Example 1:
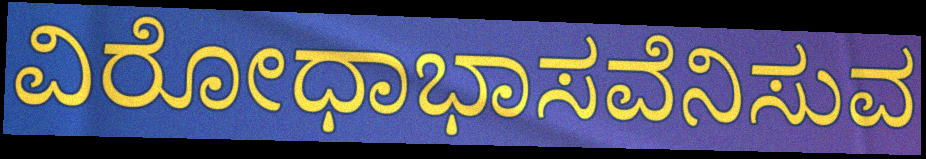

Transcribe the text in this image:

ವಿರೋಧಾಭಾಸವೆನಿಸುವ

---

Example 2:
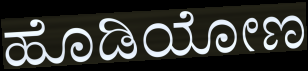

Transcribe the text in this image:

ಹೊಡಿಯೋಣ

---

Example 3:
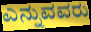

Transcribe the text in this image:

ಎನ್ನುವವರು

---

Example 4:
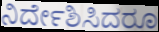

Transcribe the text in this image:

ನಿರ್ದೇಶಿಸಿದರೂ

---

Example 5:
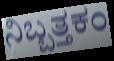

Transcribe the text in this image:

ನಿಬ್ಬತ್ತಕಂ